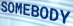
SOMEBODY